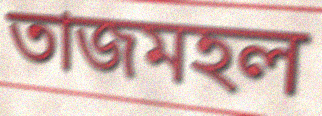
তাজমহল